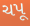
ચપૂ